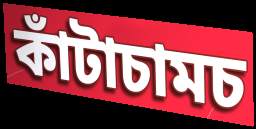
কাঁটাচামচ